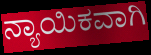
ನ್ಯಾಯಿಕವಾಗಿ